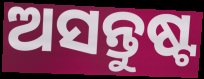
ଅସନ୍ତୁଷ୍ଟ